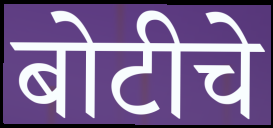
बोटीचे